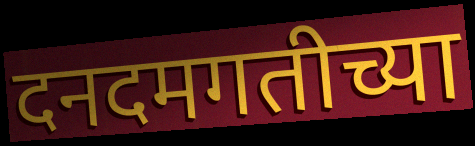
दनदमगतीच्या